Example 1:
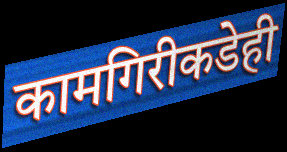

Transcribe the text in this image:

कामगिरीकडेही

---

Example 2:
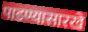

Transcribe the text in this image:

पाडण्यासारखे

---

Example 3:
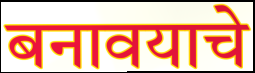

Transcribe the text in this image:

बनावयाचे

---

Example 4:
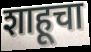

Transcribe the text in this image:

शाहूचा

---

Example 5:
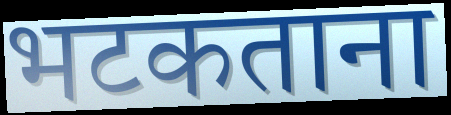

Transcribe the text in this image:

भटकताना